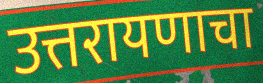
उत्तरायणाचा